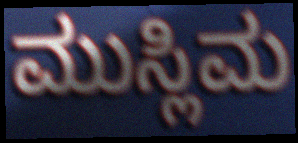
ಮುಸ್ಲಿಮ